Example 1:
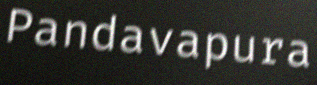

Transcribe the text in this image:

Pandavapura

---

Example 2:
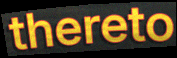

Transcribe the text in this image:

thereto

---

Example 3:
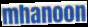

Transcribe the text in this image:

mhanoon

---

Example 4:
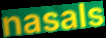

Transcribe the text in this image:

nasals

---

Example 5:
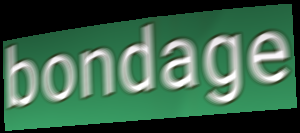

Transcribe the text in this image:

bondage